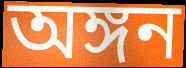
অঙ্গন